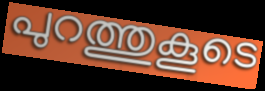
പുറത്തുകൂടെ